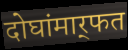
दोघांमार्फत